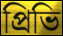
প্রিভি